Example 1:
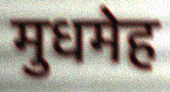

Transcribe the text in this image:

मुधमेह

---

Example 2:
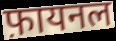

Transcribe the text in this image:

फ़ायनल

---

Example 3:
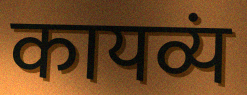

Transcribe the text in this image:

कायव्यं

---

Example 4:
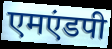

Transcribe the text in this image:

एमएंडपी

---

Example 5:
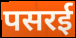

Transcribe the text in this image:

पसरई